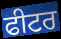
ਫੀਟਰ